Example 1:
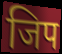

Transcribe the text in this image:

जिप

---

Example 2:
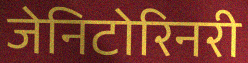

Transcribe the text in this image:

जेनिटोरिनरी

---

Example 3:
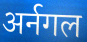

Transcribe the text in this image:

अर्नगल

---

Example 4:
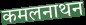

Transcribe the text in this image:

कमलनाथन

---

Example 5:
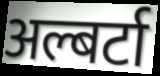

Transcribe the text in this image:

अल्बर्टा